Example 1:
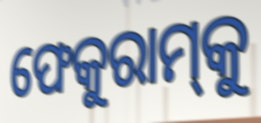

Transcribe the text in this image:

ଫେକୁରାମ୍‌କୁ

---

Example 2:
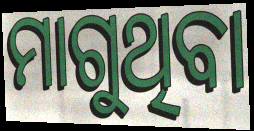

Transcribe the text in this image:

ମାଗୁଥିବା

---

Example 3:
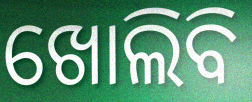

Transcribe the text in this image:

ଖୋଲିବି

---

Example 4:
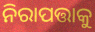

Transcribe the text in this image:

ନିରାପତ୍ତାକୁ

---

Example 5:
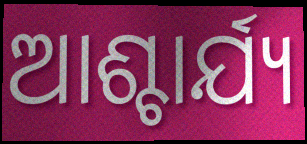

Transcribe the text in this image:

ଆଶ୍ଚାର୍ଯ୍ୟ